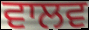
ਵਾਲਵ